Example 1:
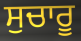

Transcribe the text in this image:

ਸੁਚਾਰੂ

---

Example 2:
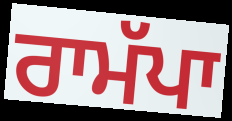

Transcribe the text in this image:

ਰਾਮੱਪਾ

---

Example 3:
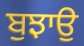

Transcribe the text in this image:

ਬੁਝਾਉ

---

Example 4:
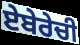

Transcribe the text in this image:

ਏਬੇਰੇਚੀ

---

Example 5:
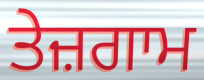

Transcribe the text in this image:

ਤੇਜ਼ਗਾਮ